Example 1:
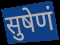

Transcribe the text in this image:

सुषेणं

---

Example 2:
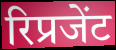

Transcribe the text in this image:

रिप्रजेंट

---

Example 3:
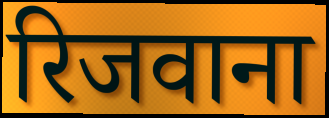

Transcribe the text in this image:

रिजवाना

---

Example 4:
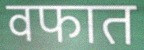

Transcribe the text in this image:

वफात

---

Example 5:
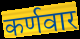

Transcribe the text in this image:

कर्णवार